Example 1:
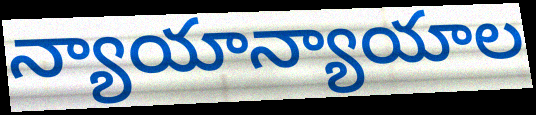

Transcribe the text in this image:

న్యాయాన్యాయాల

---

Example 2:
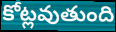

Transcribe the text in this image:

కోట్లవుతుంది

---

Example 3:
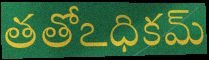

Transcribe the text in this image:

తతోఽధికమ్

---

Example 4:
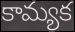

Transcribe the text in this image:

కామ్యక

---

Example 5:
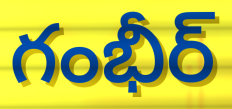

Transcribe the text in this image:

గంభీర్